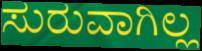
ಸುರುವಾಗಿಲ್ಲ